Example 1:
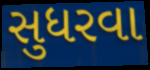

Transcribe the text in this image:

સુધરવા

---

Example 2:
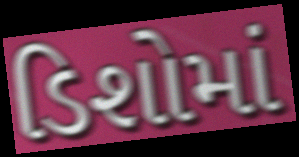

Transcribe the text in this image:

ડિશોમાં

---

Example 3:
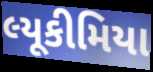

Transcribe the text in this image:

લ્યૂકીમિયા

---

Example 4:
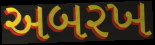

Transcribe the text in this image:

અબરખ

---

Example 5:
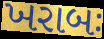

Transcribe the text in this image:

ખરાબઃ